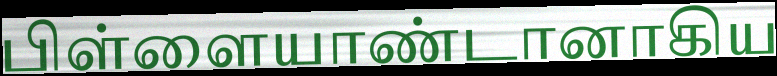
பிள்ளையாண்டானாகிய